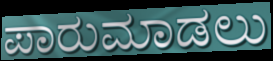
ಪಾರುಮಾಡಲು